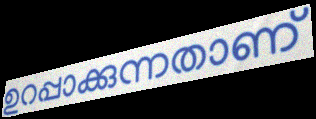
ഉറപ്പാക്കുന്നതാണ്